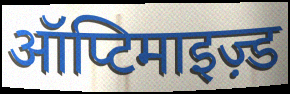
ऑप्टिमाइज़्ड